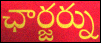
ఛార్జర్ను